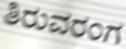
ತಿರುವರಂಗ